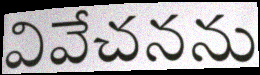
వివేచనను